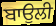
ਬਾਉਲੀ